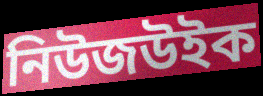
নিউজউইক